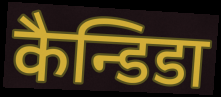
कैन्डिडा